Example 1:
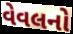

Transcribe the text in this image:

વેવલનો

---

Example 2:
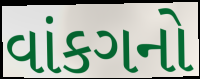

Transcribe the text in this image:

વાંકગનો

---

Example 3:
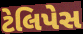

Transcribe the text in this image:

ટેલિપેસ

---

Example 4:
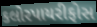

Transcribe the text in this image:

કલોરપાયરીફોસ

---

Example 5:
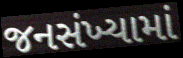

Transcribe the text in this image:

જનસંખ્યામાં